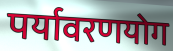
पर्यावरणयोग